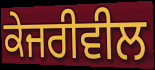
ਕੇਜਰੀਵੀਲ